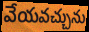
వేయవచ్చును